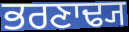
ਭਰਣਾਢ੍ਯ